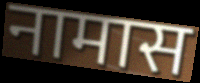
नामास